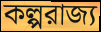
কল্পরাজ্য